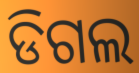
ଡିଗଲ